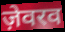
ज़ेवरव